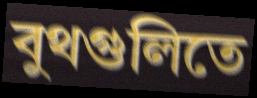
বুথগুলিতে